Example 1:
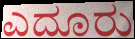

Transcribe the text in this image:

ಎದೂರು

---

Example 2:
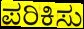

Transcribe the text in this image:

ಪರಿಕಿಸು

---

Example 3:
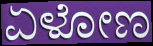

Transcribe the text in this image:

ಏಳೋಣ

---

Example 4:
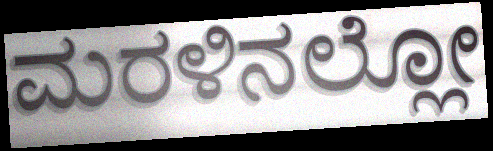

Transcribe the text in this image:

ಮರಳಿನಲ್ಲೋ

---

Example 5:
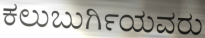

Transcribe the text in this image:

ಕಲುಬುರ್ಗಿಯವರು